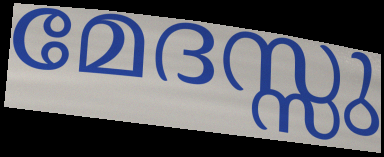
മേദസ്സു